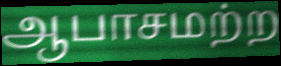
ஆபாசமற்ற